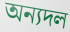
অন্যদল